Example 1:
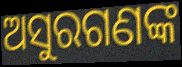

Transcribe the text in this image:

ଅସୁରଗଣଙ୍କ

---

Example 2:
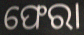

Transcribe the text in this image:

ଫେରା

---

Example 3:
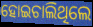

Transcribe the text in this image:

ହୋଇଚାଲିଥିଲେ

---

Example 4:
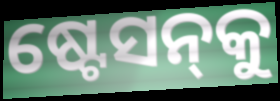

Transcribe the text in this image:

ଷ୍ଟେସନ୍‍କୁ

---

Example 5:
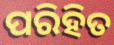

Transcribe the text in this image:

ପରିହିତ